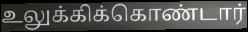
உலுக்கிக்கொண்டார்